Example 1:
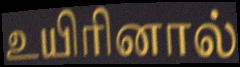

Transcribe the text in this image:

உயிரினால்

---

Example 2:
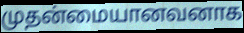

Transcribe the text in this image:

முதன்மையானவனாக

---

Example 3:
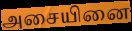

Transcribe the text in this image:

அசையினை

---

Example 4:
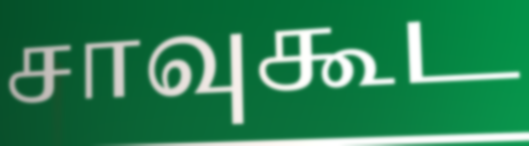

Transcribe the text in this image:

சாவுகூட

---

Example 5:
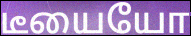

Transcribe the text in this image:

டீயையோ